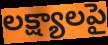
లక్ష్యాలపై